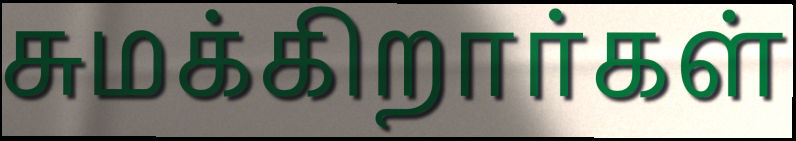
சுமக்கிறார்கள்